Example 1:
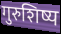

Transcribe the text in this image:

गुरुशिष्य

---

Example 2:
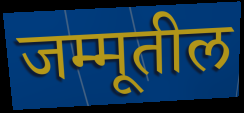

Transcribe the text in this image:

जम्मूतील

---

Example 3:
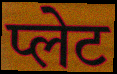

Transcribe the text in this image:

प्लेट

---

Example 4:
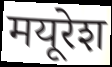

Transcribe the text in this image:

मयूरेश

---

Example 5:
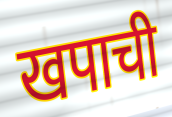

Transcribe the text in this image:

खपाची